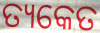
ତ୍ୟକେତ